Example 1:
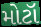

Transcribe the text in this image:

મોટૉ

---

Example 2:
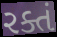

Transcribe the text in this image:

રક્તં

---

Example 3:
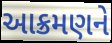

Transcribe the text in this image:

આક્રમણને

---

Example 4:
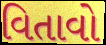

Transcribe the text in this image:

વિતાવો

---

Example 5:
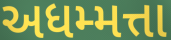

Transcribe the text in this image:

અધમ્મત્તા